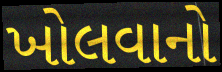
ખોલવાનો